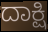
ದಾಕ್ಷಿ